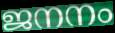
ജനനം